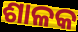
ଶାଳକ